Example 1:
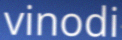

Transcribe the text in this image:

vinodi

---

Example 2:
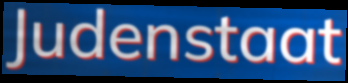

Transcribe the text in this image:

Judenstaat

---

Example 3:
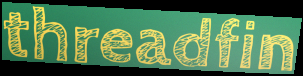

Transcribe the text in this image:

threadfin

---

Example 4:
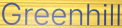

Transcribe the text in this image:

Greenhill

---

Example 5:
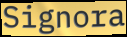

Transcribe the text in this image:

Signora